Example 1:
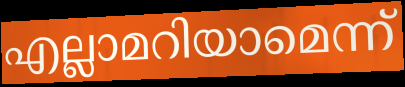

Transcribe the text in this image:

എല്ലാമറിയാമെന്ന്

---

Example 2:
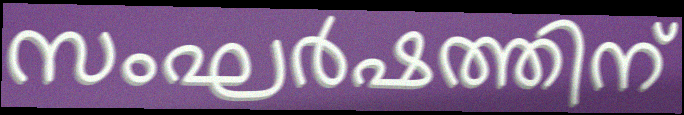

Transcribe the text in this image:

സംഘർഷത്തിന്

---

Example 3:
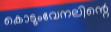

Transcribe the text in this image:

കൊടുംവേനലിന്റെ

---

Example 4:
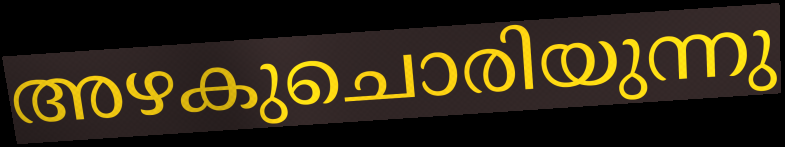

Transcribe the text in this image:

അഴകുചൊരിയുന്നു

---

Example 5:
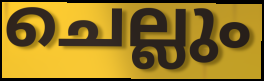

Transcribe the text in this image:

ചെല്ലും